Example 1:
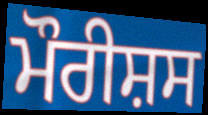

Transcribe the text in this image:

ਮੌਰੀਸ਼ਸ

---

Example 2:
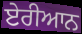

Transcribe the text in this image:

ਏਰੀਆਨ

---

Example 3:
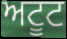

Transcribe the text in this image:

ਅਟੂਟ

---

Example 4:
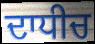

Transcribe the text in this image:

ਦਾਧੀਚ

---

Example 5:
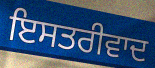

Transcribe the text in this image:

ਇਸਤਰੀਵਾਦ